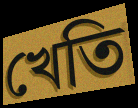
খেতি